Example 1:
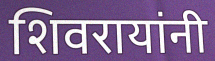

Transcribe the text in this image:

शिवरायांनी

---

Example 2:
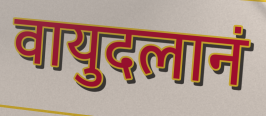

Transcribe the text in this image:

वायुदलानं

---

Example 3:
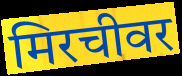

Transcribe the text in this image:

मिरचीवर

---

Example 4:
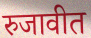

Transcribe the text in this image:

रुजावीत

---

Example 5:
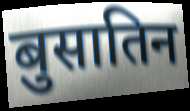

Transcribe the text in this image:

बुसातिन